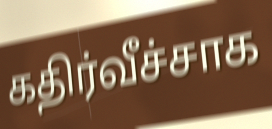
கதிர்வீச்சாக